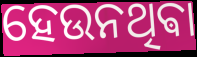
ହେଉନଥିଵା